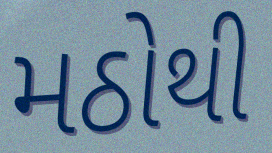
મઠોથી